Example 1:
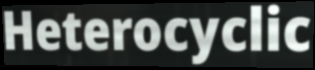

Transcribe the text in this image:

Heterocyclic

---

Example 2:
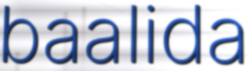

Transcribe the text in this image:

baalida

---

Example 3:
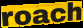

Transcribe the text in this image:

roach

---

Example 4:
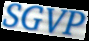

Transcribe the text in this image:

SGVP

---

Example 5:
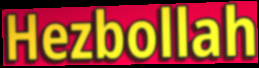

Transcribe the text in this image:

Hezbollah